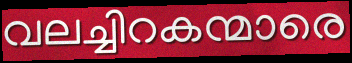
വലച്ചിറകന്മാരെ